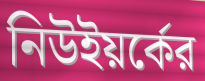
নিউইয়র্কের